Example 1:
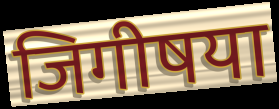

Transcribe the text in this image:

जिगीषया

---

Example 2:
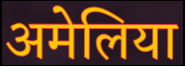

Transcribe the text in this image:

अमेलिया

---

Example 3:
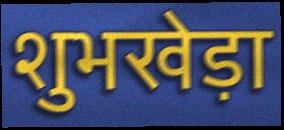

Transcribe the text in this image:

शुभखेड़ा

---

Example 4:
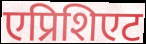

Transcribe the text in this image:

एप्रिशिएट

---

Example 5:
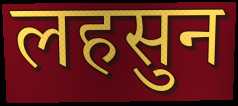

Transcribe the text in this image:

लहसुन